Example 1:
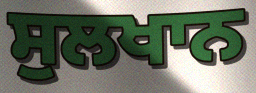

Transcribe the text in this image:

ਸੁਲਖਾਨ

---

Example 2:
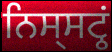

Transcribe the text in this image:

ਨਿਸ੍ਸਟ੍ਠਂ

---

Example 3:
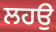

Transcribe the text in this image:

ਲਹਉ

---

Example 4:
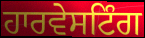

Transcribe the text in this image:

ਹਾਰਵੇਸਟਿੰਗ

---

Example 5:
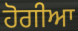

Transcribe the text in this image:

ਹੋਗੀਆ